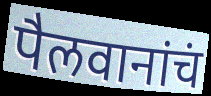
पैलवानांचं